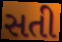
સતી